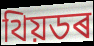
থিয়ডৰ